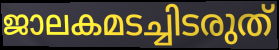
ജാലകമടച്ചിടരുത്